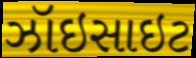
ઝૉઇસાઇટ